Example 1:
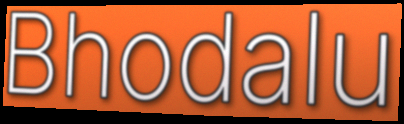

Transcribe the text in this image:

Bhodalu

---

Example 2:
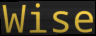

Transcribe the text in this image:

Wise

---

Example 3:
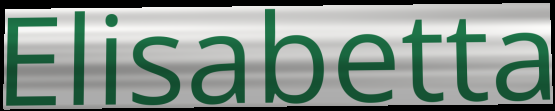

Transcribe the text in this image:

Elisabetta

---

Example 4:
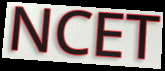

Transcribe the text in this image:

NCET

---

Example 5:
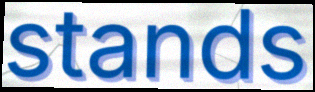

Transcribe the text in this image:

stands